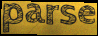
parse